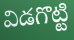
విడగొట్టి